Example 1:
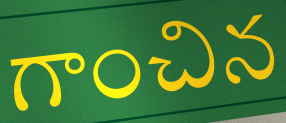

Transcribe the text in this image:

గాంచిన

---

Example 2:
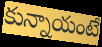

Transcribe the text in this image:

కున్నాయంటే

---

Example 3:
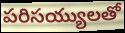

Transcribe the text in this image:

పరిసయ్యులతో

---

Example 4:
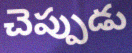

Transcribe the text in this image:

చెప్పుడు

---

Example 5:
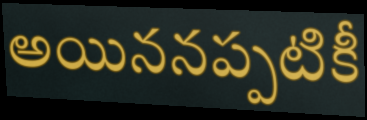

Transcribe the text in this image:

అయిననప్పటికీ